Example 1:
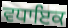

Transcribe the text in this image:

ਵਧਾਇਕ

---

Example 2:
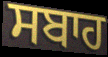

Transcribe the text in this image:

ਸਬਾਹ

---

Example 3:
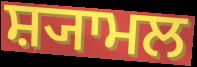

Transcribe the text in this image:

ਸ਼੍ਯਾਮਲ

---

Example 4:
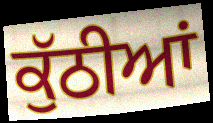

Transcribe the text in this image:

ਕੁੱਠੀਆਂ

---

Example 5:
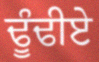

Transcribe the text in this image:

ਢੂੰਢੀਏ